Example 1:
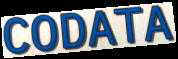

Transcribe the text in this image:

CODATA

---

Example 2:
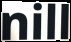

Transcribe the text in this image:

nill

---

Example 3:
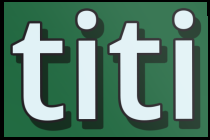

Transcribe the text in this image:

titi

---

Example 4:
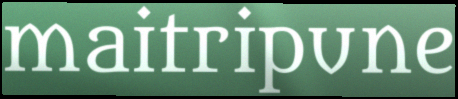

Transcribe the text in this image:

maitripune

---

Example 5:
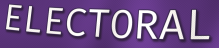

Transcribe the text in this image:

ELECTORAL